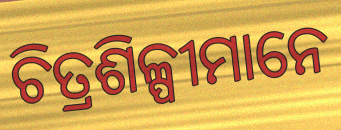
ଚିତ୍ରଶିଳ୍ପୀମାନେ